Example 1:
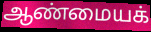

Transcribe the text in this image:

ஆண்மையக்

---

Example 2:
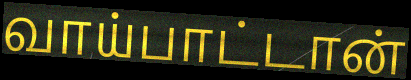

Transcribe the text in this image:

வாய்பாட்டான்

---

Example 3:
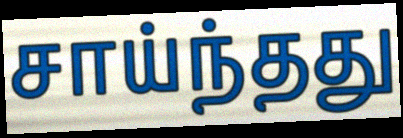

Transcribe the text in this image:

சாய்ந்தது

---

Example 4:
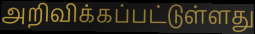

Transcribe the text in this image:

அறிவிக்கப்பட்டுள்ளது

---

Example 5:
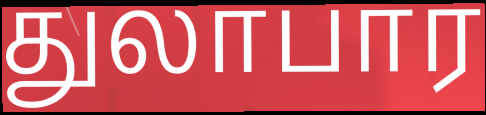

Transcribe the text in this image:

துலாபார